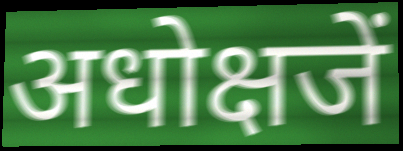
अधोक्षजें